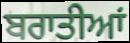
ਬਰਾਤੀਆਂ